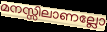
മനസ്സിലാണല്ലോ